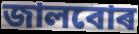
জালবোৰ